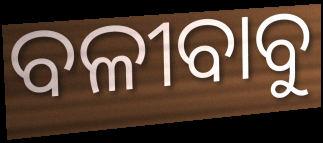
ବଳୀବାବୁ